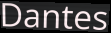
Dantes